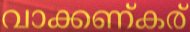
വാക്കണ്കര്